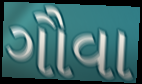
ગૌવા